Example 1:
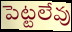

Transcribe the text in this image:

పెట్టలేవు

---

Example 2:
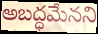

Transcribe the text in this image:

అబద్ధమేనని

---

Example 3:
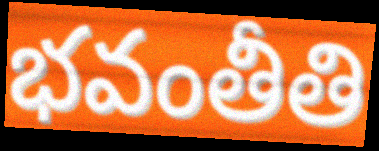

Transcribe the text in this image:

భవంతీతి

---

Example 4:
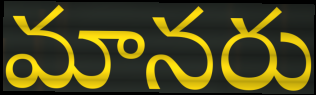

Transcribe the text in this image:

మానరు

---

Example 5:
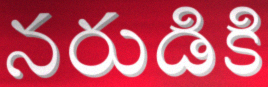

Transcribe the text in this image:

నరుడికి